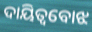
ଦାୟିତ୍ୱବୋଝ